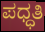
ಪಧ್ಧತಿ